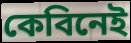
কেবিনেই